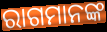
ରାଗମାନଙ୍କ